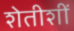
शेतीशीं